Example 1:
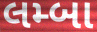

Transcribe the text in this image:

લમ્બા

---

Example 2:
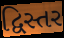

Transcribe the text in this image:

દ્વિસ્તર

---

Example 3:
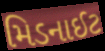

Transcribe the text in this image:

મિડનાઈટ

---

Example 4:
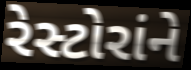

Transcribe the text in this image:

રેસ્ટોરાંને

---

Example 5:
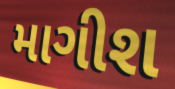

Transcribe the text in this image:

માગીશ